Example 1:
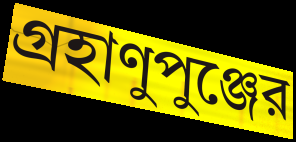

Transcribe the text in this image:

গ্রহাণুপুঞ্জের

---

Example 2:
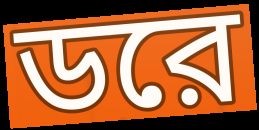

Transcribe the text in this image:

ডরে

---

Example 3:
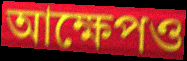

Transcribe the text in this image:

আক্ষেপও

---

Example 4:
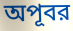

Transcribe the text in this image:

অপূবর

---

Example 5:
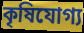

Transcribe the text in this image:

কৃষিযোগ্য